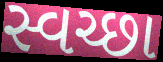
સ્વચ્છા